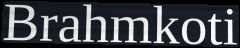
Brahmkoti